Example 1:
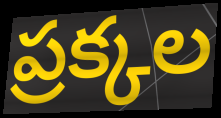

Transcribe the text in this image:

ప్రక్కల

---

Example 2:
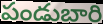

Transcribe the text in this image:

పండుబారి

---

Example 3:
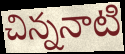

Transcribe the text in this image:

చిన్ననాటి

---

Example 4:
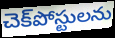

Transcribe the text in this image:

చెక్‌పోస్టులను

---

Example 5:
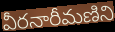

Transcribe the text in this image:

వీరనారీమణిని